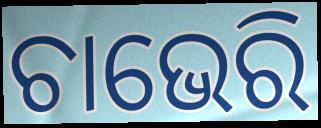
ଚାଭେରି